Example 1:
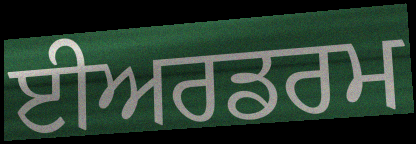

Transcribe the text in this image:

ਈਅਰਡਰਮ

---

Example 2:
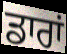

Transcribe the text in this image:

ਡਾਰਾਂ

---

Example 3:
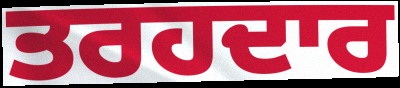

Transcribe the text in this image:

ਤਰਹਦਾਰ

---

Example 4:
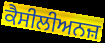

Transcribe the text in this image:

ਕੈਸੀਲੀਅਨਜ਼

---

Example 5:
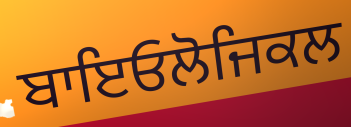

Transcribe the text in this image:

ਬਾਇਓਲੋਜਿਕਲ